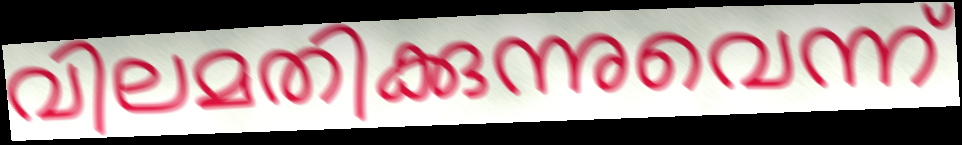
വിലമതിക്കുന്നുവെന്ന്